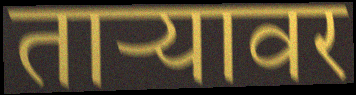
ताऱ्यावर